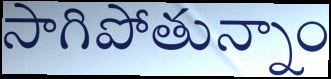
సాగిపోతున్నాం